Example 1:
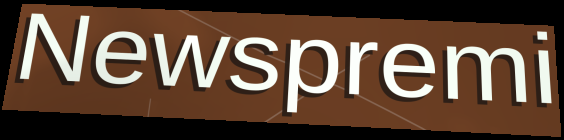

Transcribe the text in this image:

Newspremi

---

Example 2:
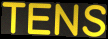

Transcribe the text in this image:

TENS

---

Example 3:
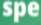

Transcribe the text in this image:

spe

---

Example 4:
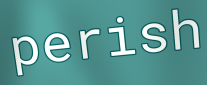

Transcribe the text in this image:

perish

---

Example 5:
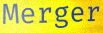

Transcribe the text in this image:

Merger